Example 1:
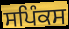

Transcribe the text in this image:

ਸਪਿੰਕਸ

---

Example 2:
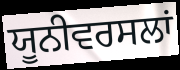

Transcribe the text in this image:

ਯੂਨੀਵਰਸਲਾਂ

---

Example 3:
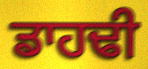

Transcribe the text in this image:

ਡਾਹਢੀ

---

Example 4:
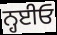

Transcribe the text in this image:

ਨ੍ਹਈਓ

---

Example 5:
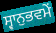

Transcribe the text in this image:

ਸ੍ਵਾਨੁਭਵਮੇਂ